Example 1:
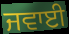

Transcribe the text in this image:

ਜਵਾਈ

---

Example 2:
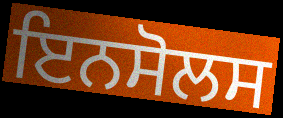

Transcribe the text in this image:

ਇਨਸੋਲਸ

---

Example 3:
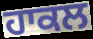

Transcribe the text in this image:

ਹਾਕਲ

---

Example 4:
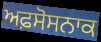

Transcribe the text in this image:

ਅਫ਼ਸੋਸਨਾਕ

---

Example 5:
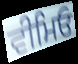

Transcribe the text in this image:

ਵੀਮਿਓ